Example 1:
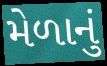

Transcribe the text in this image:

મેળાનું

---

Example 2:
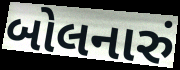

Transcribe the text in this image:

બોલનારું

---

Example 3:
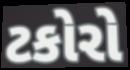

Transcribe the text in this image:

ટકોરો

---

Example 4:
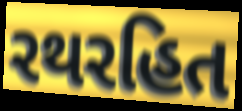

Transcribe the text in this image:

રથરહિત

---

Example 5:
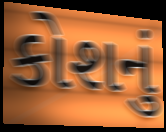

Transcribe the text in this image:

કોશનું